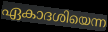
ഏകാദശിയെന്ന